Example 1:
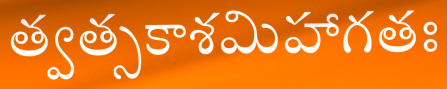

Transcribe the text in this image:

త్వత్సకాశమిహాగతః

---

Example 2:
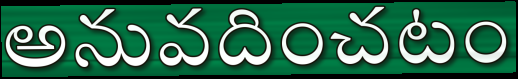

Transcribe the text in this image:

అనువదించటం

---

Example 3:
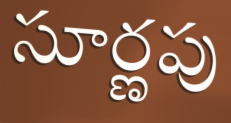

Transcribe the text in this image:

సూర్ణపు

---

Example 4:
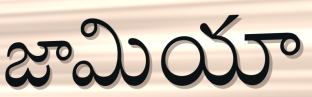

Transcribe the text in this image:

జామియా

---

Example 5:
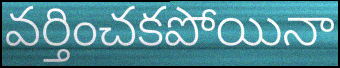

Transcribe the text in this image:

వర్తించకపోయినా